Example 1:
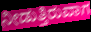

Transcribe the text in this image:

ನೀಡುತ್ತಿರುವಾಗ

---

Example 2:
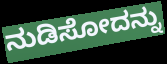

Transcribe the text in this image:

ನುಡಿಸೋದನ್ನು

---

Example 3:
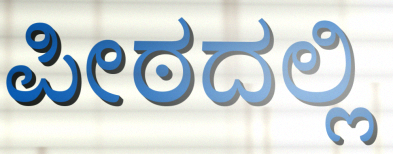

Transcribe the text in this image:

ಪೀಠದಲ್ಲಿ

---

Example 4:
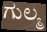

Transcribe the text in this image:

ಗುಲ್ಮ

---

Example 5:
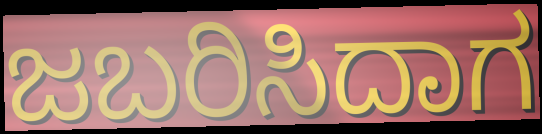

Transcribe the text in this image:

ಜಬರಿಸಿದಾಗ